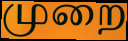
முறை